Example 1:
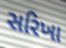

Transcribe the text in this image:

સરિખા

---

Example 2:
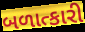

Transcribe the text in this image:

બળાત્કારી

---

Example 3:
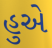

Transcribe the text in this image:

હુએ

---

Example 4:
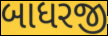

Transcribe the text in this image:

બાધરજી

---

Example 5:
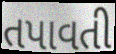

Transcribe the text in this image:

તપાવતી